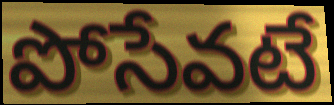
పోసేవటే